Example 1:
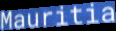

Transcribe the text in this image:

Mauritia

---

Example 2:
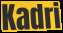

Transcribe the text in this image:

Kadri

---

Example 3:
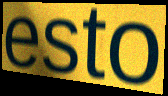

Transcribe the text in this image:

esto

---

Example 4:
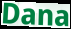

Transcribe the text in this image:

Dana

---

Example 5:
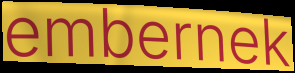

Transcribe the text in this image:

embernek